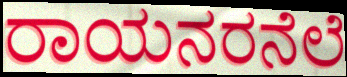
ರಾಯನರನೆಲೆ